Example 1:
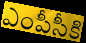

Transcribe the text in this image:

ఎంపీసీకి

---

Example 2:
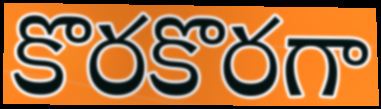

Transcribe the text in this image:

కొరకొరగా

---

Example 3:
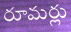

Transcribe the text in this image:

రూమర్లు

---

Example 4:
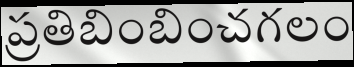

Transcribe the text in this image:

ప్రతిబింబించగలం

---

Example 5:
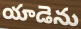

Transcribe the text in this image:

యాడెను